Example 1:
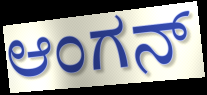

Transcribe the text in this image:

ಆಂಗನ್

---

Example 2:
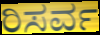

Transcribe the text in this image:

ರಿಸರ್ವ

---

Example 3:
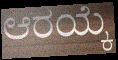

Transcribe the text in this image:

ಆರಯ್ಕೆ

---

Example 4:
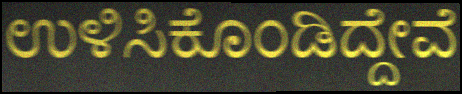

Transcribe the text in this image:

ಉಳಿಸಿಕೊಂಡಿದ್ದೇವೆ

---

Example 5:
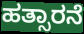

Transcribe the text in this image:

ಹತ್ಸಾರನೆ